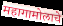
महागामोलाचे